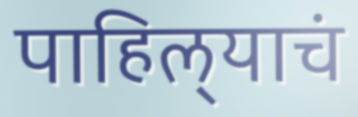
पाहिल्याचं